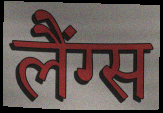
लैंग्स